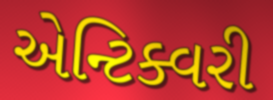
એન્ટિક્વરી